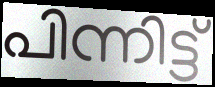
പിന്നിട്ട്